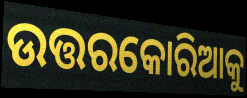
ଉତ୍ତରକୋରିଆକୁ